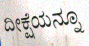
ದೀಕ್ಷೆಯನ್ನೂ